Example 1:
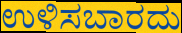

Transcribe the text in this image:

ಉಳಿಸಬಾರದು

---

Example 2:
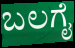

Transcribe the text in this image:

ಬಲಗೈ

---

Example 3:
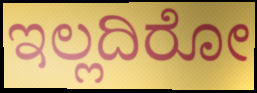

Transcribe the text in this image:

ಇಲ್ಲದಿರೋ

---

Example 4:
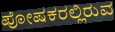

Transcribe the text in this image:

ಪೋಷಕರಲ್ಲಿರುವ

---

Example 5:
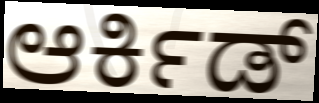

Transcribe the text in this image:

ಆರ್ಕಿಡ್